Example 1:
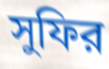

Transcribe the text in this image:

সুফির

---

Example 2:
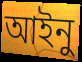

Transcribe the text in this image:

আইনু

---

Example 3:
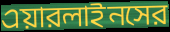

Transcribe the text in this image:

এয়ারলাইনসের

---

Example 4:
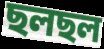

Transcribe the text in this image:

ছলছল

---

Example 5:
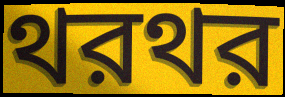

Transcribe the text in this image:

থরথর